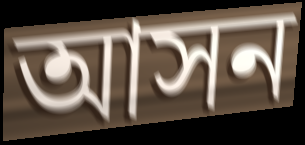
আসন